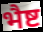
भैष्ट